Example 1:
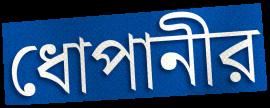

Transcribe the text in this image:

ধোপানীর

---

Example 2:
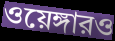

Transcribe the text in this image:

ওয়েঙ্গারও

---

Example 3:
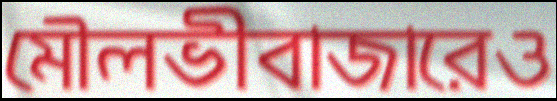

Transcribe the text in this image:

মৌলভীবাজারেও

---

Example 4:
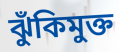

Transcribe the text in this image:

ঝুঁকিমুক্ত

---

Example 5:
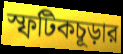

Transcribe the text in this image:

স্ফটিকচূড়ার